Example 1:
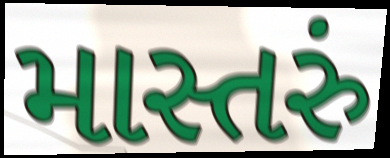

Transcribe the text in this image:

માસ્તરું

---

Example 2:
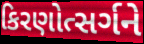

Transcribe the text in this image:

કિરણોત્સર્ગને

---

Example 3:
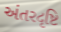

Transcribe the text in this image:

અંતરદૃષ્ટિ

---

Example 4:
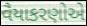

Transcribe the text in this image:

વૈયાકરણોએ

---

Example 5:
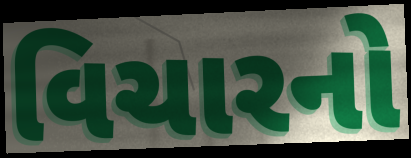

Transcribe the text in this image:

વિચારનો